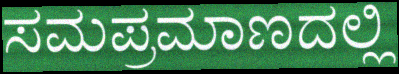
ಸಮಪ್ರಮಾಣದಲ್ಲಿ